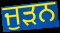
ਜੁਡ਼ਨ